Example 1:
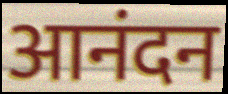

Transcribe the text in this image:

आनंदन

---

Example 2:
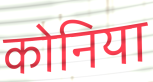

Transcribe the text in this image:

कोनिया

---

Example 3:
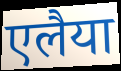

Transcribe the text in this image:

एलैया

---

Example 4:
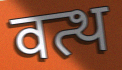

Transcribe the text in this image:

वत्थ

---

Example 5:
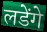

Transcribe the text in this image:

लडेंगे